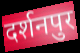
दर्शनपुर